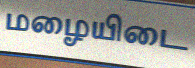
மழையிடை